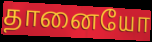
தானையோ